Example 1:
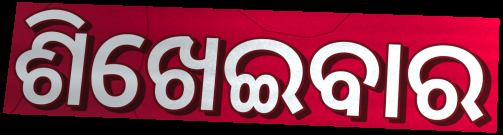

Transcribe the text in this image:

ଶିଖେଇବାର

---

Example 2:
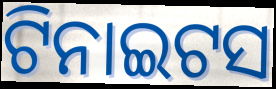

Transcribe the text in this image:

ଟିନାଇଟସ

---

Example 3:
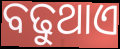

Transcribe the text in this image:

ବଢୁଥାଏ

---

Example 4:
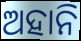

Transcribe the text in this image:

ଅହାନି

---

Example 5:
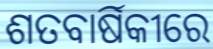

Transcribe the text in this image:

ଶତବାର୍ଷିକୀରେ